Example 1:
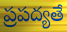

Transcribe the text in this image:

ప్రపద్యతే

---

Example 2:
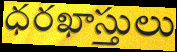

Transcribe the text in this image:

ధరఖాస్తులు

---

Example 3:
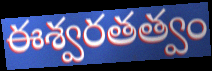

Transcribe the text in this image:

ఈశ్వరతత్వం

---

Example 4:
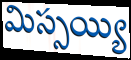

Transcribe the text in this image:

మిస్సయ్యి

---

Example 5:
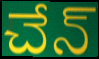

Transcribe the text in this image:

చేన్